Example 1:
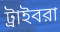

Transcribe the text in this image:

ট্রাইবরা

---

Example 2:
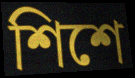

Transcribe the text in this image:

শিশে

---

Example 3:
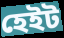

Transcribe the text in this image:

হেইট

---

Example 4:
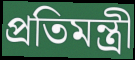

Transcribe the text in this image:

প্রতিমন্ত্রী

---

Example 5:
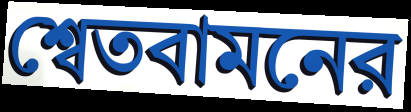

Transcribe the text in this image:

শ্বেতবামনের